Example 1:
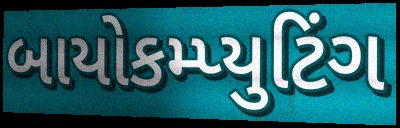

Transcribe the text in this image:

બાયોકમ્પ્યુટિંગ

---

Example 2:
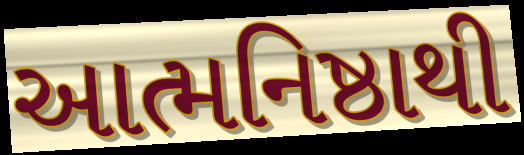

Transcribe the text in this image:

આત્મનિષ્ઠાથી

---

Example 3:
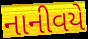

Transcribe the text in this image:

નાનીવયે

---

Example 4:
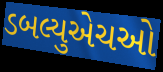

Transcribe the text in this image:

ડબલ્યુએચઓ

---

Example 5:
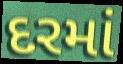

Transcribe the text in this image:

દરમાં